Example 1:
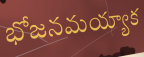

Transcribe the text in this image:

భోజనమయ్యాక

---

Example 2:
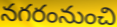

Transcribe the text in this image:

నగరంనుంచి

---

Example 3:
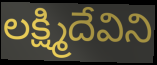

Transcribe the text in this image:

లక్ష్మిదేవిని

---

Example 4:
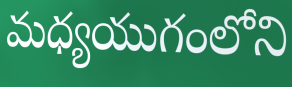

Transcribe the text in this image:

మధ్యయుగంలోని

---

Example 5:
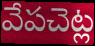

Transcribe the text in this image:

వేపచెట్ల